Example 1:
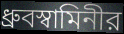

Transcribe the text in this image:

ধ্রুবস্বামিনীর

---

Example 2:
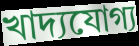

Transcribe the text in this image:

খাদ্যযোগ্য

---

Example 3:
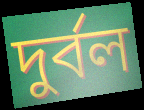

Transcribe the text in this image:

দুর্বল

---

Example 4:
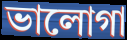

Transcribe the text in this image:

ভালোগা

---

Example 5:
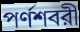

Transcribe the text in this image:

পর্ণশবরী